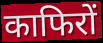
काफिरों